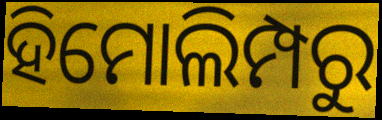
ହିମୋଲିମ୍ପରୁ